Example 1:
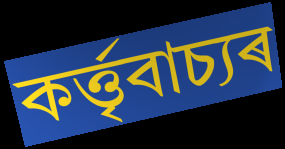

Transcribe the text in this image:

কৰ্ত্তৃবাচ্যৰ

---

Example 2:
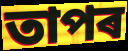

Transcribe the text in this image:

তাপৰ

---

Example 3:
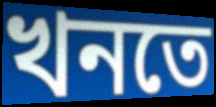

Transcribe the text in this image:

খনতে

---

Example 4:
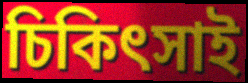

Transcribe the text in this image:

চিকিৎসাই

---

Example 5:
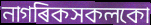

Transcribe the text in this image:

নাগৰিকসকলকো